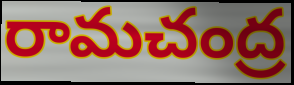
రామచంద్ర